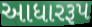
આધારરૂપ